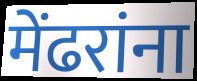
मेंढरांना